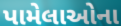
પામેલાઓના